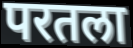
परतला